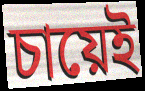
চায়েই